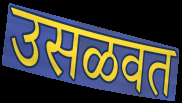
उसळवत